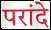
परांदे